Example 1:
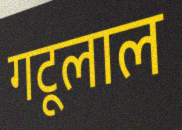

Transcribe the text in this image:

गटूलाल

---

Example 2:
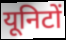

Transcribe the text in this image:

यूनिटों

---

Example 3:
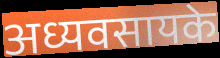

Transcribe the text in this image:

अध्यवसायके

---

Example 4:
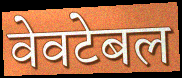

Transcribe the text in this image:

वेवटेबल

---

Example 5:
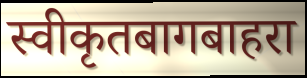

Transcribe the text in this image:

स्वीकृतबागबाहरा